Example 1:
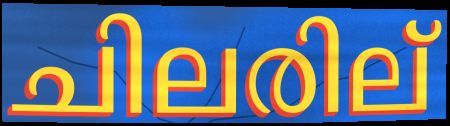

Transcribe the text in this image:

ചിലരില്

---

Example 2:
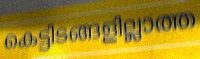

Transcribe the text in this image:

കെട്ടിടങ്ങളില്ലാത്ത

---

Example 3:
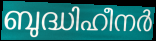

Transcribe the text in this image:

ബുദ്ധിഹീനർ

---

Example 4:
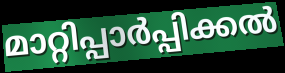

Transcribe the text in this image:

മാറ്റിപ്പാർപ്പിക്കൽ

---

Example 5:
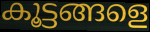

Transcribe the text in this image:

കൂട്ടങ്ങളെ